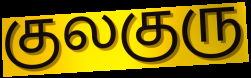
குலகுரு